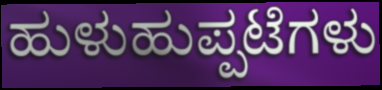
ಹುಳುಹುಪ್ಪಟೆಗಳು